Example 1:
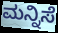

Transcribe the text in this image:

ಮನ್ನಿಸೆ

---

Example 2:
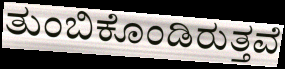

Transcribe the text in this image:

ತುಂಬಿಕೊಂಡಿರುತ್ತವೆ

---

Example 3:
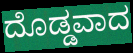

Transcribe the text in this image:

ದೊಡ್ಡವಾದ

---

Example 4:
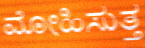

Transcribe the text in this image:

ಮೋಹಿಸುತ್ತ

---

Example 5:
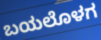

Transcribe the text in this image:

ಬಯಲೊಳಗ